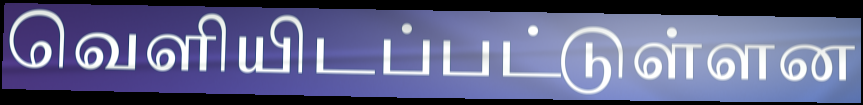
வெளியிடப்பட்டுள்ளன